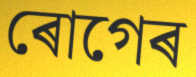
ৰোগেৰ